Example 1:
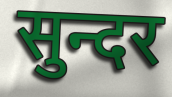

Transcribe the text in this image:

सुन्दर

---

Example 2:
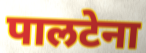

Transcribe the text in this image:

पालटेना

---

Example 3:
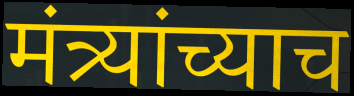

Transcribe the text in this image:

मंत्र्यांच्याच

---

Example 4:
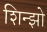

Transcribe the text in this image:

शिन्झो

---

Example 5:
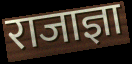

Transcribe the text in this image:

राजाज्ञा